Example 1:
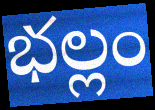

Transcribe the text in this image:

భల్లం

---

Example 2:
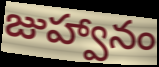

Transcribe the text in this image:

జుహ్వానం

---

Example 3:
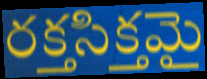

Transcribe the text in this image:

రక్తసిక్తమై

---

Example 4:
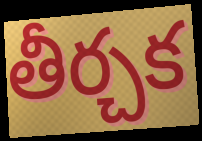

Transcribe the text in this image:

తీర్చక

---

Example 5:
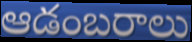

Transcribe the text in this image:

ఆడంబరాలు